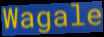
Wagale